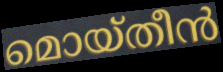
മൊയ്തീൻ